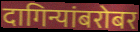
दागिन्यांबरोबर